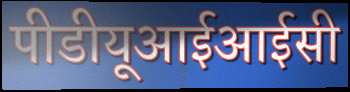
पीडीयूआईआईसी